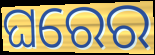
ଘରେର